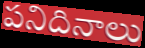
పనిదినాలు